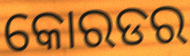
କୋରଡର